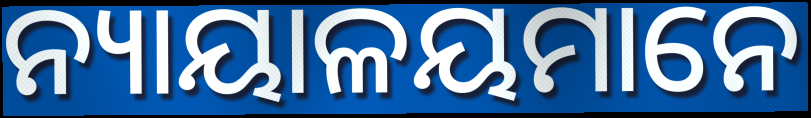
ନ୍ୟାୟାଳୟମାନେ